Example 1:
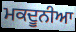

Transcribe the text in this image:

ਮਕਦੂਨੀਆ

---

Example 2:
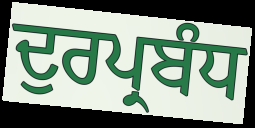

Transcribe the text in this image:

ਦੁਰਪ੍ਰਬੰਧ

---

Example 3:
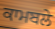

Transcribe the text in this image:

ਕਾਮਬਲੇ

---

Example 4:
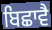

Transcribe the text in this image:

ਬਿਛਾਵੈ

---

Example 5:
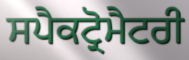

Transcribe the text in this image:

ਸਪੈਕਟ੍ਰੋਮੈਟਰੀ